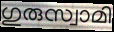
ഗുരുസ്വാമി